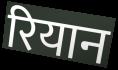
रियान